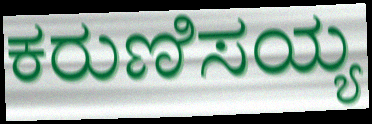
ಕರುಣಿಸಯ್ಯ